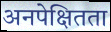
अनपेक्षितता